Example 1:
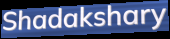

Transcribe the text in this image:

Shadakshary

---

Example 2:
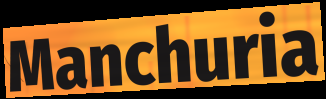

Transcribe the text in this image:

Manchuria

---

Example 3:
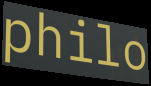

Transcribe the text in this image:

philo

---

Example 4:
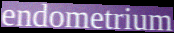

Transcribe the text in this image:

endometrium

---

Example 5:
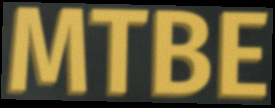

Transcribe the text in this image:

MTBE